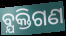
ବ୍ଯକ୍ତିଗଣ